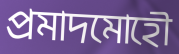
প্রমাদমোহৌ